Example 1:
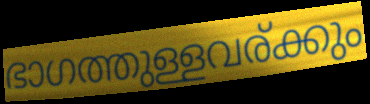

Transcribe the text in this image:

ഭാഗത്തുള്ളവര്ക്കും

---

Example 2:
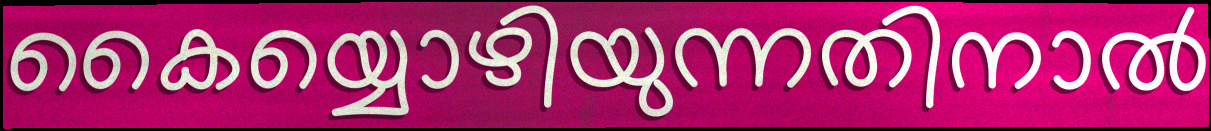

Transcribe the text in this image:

കൈയ്യൊഴിയുന്നതിനാൽ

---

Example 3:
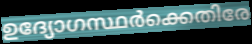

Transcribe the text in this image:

ഉദ്യോഗസ്ഥർക്കെതിരേ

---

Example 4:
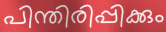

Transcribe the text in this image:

പിന്തിരിപ്പിക്കും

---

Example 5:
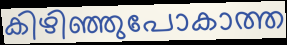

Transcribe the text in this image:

കിഴിഞ്ഞുപോകാത്ത